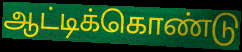
ஆட்டிக்கொண்டு